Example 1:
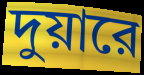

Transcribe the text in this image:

দুয়ারে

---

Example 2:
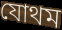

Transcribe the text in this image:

যোথম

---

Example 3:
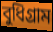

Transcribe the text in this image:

বুধিগ্রাম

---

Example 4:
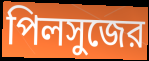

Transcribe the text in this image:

পিলসুজের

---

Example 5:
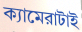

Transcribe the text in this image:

ক্যামেরাটাই